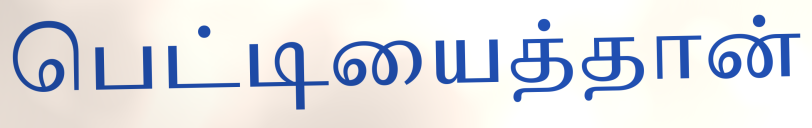
பெட்டியைத்தான்